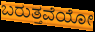
ಬರುತ್ತವೆಯೋ